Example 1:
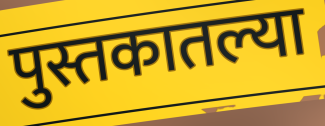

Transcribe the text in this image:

पुस्तकातल्या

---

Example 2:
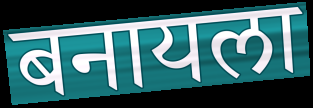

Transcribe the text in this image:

बनायला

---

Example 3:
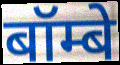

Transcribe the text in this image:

बॉम्बे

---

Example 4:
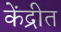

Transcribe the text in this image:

केंद्रीत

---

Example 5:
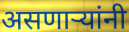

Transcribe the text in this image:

असणाऱ्यांनी